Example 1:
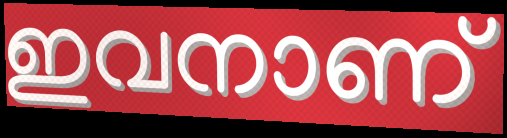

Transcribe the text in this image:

ഇവനാണ്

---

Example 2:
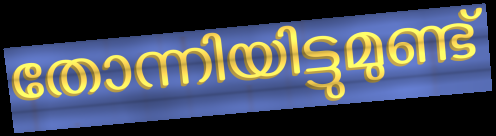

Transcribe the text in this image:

തോന്നിയിട്ടുമുണ്ട്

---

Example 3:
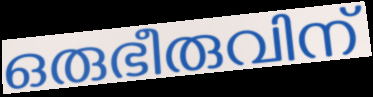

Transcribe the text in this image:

ഒരുഭീരുവിന്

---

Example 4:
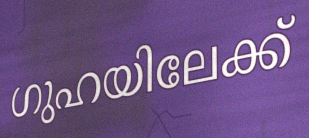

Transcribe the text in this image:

ഗുഹയിലേക്ക്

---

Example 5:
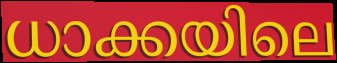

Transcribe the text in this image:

ധാക്കയിലെ